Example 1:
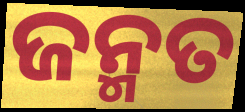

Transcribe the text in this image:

ଜନ୍ମତ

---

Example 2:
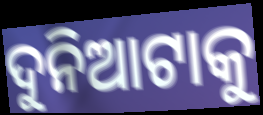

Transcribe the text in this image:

ଦୁନିଆଟାକୁ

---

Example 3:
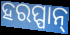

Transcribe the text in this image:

ହରପ୍ପାନ୍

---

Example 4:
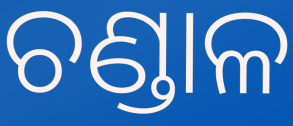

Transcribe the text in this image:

ଚଣ୍ଡାଳ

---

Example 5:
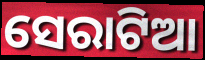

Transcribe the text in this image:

ସେରାଟିଆ